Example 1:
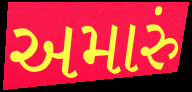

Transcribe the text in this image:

અમારું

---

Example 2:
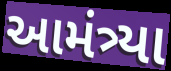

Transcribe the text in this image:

આમંત્ર્યા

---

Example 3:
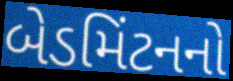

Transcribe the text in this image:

બેડમિંટનનો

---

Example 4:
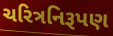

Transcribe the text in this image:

ચરિત્રનિરૂપણ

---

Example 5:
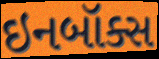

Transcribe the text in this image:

ઇનબૉક્સ